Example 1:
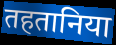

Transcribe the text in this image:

तहतानिया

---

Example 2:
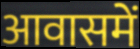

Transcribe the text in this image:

आवासमें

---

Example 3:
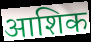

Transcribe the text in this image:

आशिक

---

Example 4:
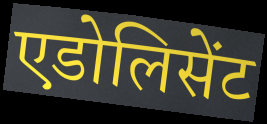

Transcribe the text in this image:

एडोलिसेंट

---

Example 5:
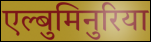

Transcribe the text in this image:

एल्बुमिनुरिया